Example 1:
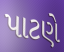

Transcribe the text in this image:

પાટણે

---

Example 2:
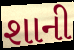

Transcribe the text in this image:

શાની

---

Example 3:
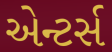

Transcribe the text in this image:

એન્ટર્સ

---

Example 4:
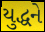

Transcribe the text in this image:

યુદ્ધને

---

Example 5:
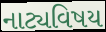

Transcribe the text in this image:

નાટ્યવિષય